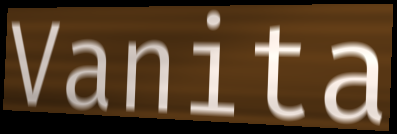
Vanita